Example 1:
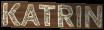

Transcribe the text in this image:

KATRIN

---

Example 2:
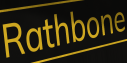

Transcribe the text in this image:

Rathbone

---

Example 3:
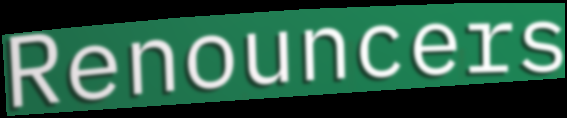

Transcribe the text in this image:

Renouncers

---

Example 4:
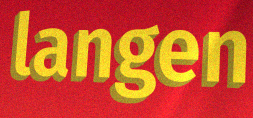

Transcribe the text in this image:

langen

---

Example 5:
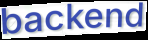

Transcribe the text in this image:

backend